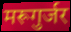
मरूगुर्जर